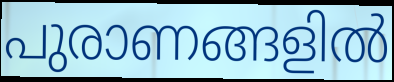
പുരാണങ്ങളിൽ